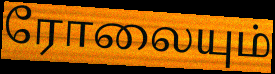
ரோலையும்